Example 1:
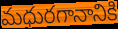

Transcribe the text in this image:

మధురగానానికి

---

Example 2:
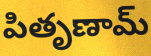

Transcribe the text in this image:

పితృణామ్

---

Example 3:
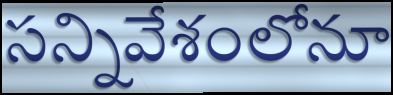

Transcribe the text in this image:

సన్నివేశంలోనూ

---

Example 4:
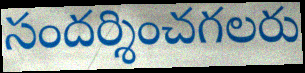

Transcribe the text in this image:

సందర్శించగలరు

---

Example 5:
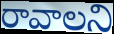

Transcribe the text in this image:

రావాలని